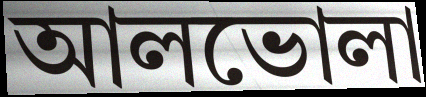
আলভোলা